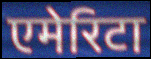
एमेरिटा